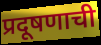
प्रदूषणाची